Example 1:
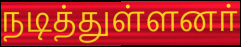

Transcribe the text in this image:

நடித்துள்ளனர்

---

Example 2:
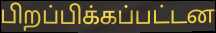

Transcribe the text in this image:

பிறப்பிக்கப்பட்டன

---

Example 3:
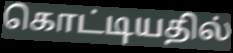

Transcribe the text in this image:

கொட்டியதில்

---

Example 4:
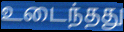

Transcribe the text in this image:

உடைந்தது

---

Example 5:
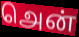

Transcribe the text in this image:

அென்